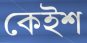
কেইশ